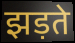
झड़ते